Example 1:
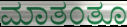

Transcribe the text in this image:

ಮಾತಂತೂ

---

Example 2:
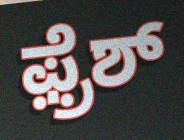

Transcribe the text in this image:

ಫ಼್ರೆಶ್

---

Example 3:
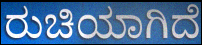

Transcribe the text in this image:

ರುಚಿಯಾಗಿದೆ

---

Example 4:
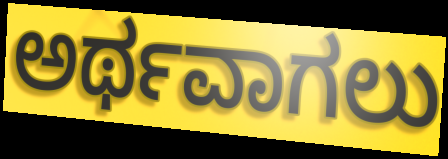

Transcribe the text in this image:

ಅರ್ಥವಾಗಲು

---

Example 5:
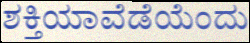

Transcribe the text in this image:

ಶಕ್ತಿಯಾವೆಡೆಯೆಂದು